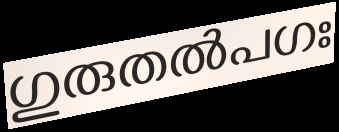
ഗുരുതൽപഗഃ